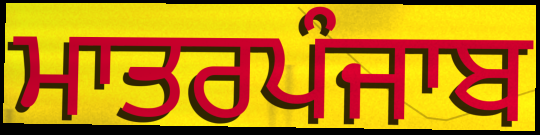
ਮਾਤਰਪੰਜਾਬ